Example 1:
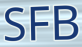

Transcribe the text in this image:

SFB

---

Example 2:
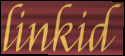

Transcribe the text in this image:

linkid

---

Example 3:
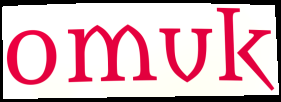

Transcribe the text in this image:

omuk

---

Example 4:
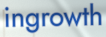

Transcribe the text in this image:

ingrowth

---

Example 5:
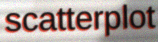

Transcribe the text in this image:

scatterplot